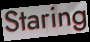
Staring